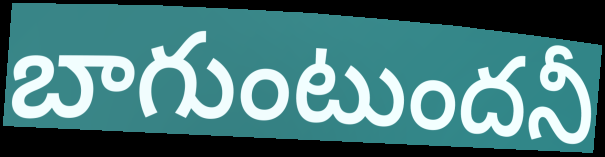
బాగుంటుందనీ